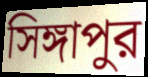
সিঙ্গাপুর